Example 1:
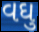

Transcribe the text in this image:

વઘુ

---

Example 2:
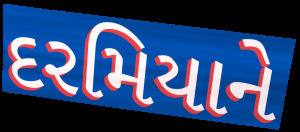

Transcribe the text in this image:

દરમિયાને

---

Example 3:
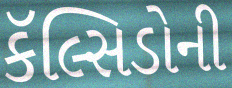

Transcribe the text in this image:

કૅલ્સિડોની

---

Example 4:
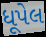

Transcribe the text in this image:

ધૂપેલ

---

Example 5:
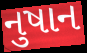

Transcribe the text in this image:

નુષાન